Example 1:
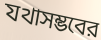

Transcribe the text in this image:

যথাসম্ভবের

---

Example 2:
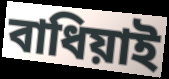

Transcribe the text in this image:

বাধিয়াই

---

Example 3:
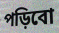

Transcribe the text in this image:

পড়িবো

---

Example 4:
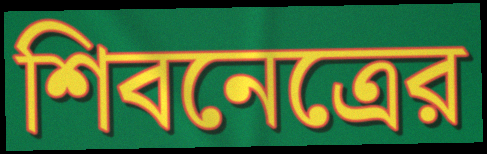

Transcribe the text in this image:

শিবনেত্রের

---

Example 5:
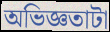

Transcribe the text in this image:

অভিজ্ঞতাটা